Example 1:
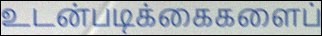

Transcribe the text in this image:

உடன்படிக்கைகளைப்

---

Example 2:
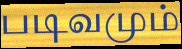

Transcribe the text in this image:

படிவமும்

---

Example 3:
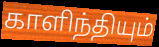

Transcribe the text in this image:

காளிந்தியும்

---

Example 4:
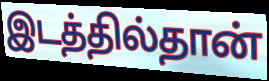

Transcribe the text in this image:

இடத்தில்தான்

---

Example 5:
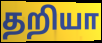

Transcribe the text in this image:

தறியா